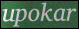
upokar